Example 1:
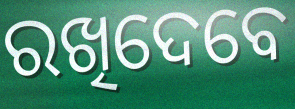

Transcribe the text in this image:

ରଖିଦେବେ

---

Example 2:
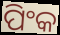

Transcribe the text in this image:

ପିଂକ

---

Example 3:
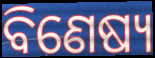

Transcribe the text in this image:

ବିଣେଷ୍ୟ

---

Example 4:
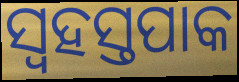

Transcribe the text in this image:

ସ୍ୱହସ୍ତପାକ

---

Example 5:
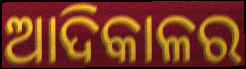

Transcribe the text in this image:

ଆଦିକାଳର